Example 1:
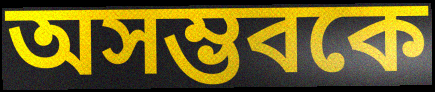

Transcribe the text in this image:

অসম্ভবকে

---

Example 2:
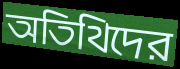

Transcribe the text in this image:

অতিথিদের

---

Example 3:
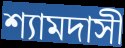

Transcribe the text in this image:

শ্যামদাসী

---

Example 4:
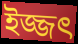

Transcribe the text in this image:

ইজ্জৎ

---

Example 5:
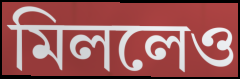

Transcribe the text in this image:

মিললেও